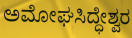
ಅಮೋಘಸಿದ್ಧೇಶ್ವರ